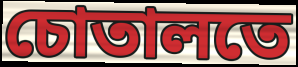
চোতালতে